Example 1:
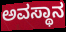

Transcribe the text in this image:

ಅವಸ್ಥಾನ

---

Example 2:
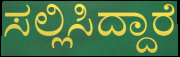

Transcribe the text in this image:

ಸಲ್ಲಿಸಿದ್ದಾರೆ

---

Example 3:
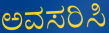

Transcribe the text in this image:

ಅವಸರಿಸಿ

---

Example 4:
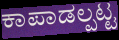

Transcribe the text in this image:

ಕಾಪಾಡಲ್ಪಟ್ಟ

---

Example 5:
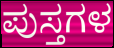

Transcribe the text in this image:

ಪುಸ್ತಗಳ